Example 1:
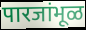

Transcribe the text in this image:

पारजांभूळ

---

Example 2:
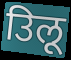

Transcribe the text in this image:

उिलू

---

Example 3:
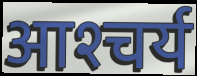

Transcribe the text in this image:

आश्चर्य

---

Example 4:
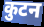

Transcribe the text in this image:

कुटन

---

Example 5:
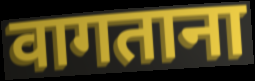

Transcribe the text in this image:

वागताना